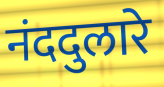
नंददुलारे